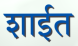
शाईत